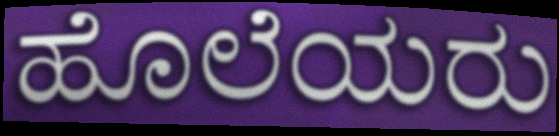
ಹೊಲೆಯರು